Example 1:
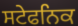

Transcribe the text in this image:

ਸਟੇਫਨਿਕ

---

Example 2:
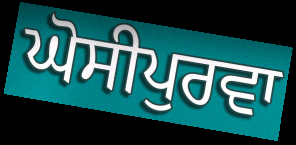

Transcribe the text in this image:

ਘੋਸੀਪੁਰਵਾ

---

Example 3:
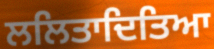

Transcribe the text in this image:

ਲਲਿਤਾਦਿਤਿਆ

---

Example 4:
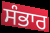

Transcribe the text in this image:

ਸੰਭਾਰ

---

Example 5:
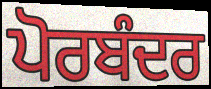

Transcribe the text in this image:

ਪੋਰਬੰਦਰ